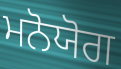
ਮਨੋਯੋਗ